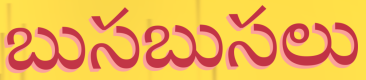
బుసబుసలు